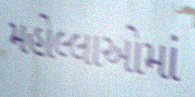
મહોલ્લાઓમાં